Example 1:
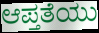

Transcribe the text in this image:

ಆಪ್ತತೆಯು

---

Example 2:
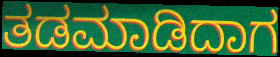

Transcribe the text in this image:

ತಡಮಾಡಿದಾಗ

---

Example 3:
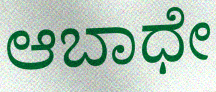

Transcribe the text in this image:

ಆಬಾಧೇ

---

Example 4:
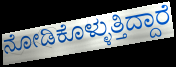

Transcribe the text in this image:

ನೋಡಿಕೊಳ್ಳುತ್ತಿದ್ದಾರೆ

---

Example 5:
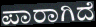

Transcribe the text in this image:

ಪಾರಾಗಿದೆ